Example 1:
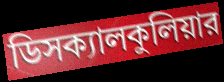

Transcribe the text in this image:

ডিসক্যালকুলিয়ার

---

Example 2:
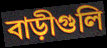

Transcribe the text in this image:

বাড়ীগুলি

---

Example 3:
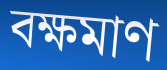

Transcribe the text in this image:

বক্ষমাণ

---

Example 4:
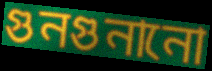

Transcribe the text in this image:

গুনগুনানো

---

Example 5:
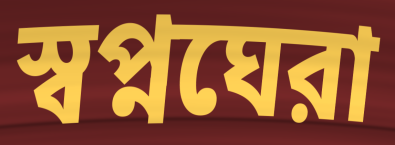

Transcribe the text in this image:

স্বপ্নঘেরা